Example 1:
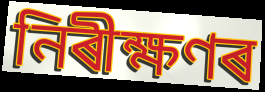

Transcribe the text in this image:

নিৰীক্ষণৰ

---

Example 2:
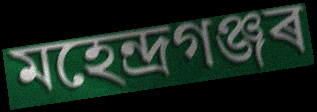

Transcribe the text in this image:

মহেন্দ্ৰগঞ্জৰ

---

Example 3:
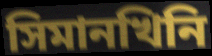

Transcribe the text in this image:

সিমানখিনি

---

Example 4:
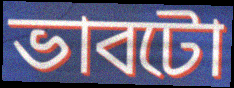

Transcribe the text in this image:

ভাবটো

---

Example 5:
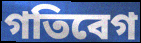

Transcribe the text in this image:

গতিবেগ